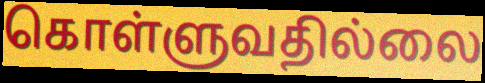
கொள்ளுவதில்லை